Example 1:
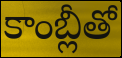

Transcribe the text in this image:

కాంబ్లీతో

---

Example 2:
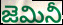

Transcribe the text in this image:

జెమినీ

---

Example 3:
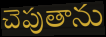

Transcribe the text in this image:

చెపుతాను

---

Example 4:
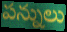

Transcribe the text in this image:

పన్నులు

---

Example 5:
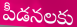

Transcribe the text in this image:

పీడనలకు